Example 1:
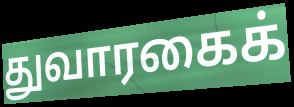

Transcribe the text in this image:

துவாரகைக்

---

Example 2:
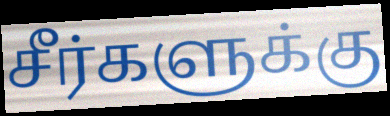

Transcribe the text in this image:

சீர்களுக்கு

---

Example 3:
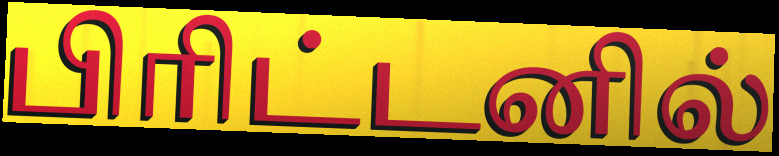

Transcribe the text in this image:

பிரிட்டனில்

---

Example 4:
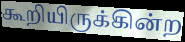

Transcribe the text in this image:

கூறியிருக்கின்ற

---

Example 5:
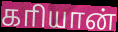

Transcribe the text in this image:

கரியான்